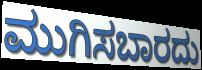
ಮುಗಿಸಬಾರದು